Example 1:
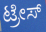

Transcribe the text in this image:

ಟ್ರೇಸ್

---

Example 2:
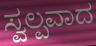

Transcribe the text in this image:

ಸ್ವಲ್ಪವಾದ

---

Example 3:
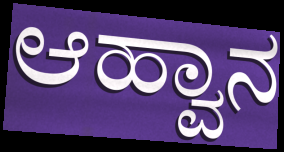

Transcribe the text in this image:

ಆಹ್ವಾನ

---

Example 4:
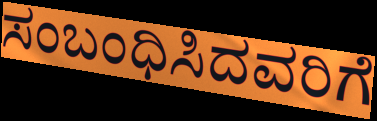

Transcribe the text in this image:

ಸಂಬಂಧಿಸಿದವರಿಗೆ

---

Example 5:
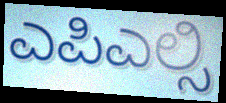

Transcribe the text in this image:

ಎಪಿಎಲ್ಸಿ